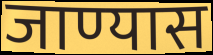
जाण्यास